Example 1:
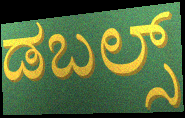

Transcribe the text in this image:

ಡಬಲ್ಸ್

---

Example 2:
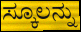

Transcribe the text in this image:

ಸ್ಕೂಲನ್ನು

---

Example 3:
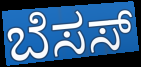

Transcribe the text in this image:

ಬೆಸಸ್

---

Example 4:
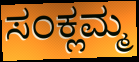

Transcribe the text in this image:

ಸಂಕ್ಲಮ್ಮ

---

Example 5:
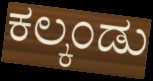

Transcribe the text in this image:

ಕಲ್ಕಂಡು